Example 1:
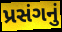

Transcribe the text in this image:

પ્રસંગનું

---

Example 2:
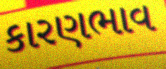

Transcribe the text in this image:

કારણભાવ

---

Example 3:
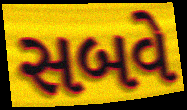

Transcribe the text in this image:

સબવે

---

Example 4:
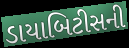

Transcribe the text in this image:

ડાયાબિટીસની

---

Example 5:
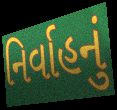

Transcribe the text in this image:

નિર્વાહનું